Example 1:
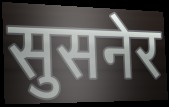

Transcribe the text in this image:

सुसनेर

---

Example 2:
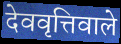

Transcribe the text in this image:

देववृत्तिवाले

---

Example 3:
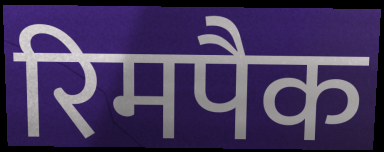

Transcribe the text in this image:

रिमपैक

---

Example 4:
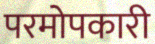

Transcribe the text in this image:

परमोपकारी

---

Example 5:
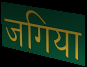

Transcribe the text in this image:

जगिया